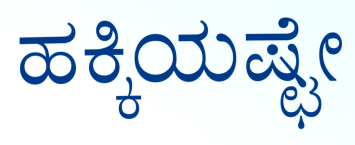
ಹಕ್ಕಿಯಷ್ಟೇ